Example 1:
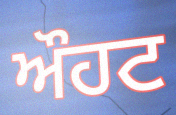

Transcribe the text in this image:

ਔਹਟ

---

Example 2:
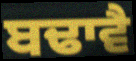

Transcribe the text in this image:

ਬਢਾਵੈ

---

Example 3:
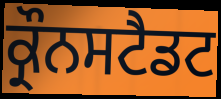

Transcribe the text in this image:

ਕ੍ਰੌਨਸਟੈਡਟ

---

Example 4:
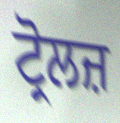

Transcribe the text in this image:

ਟ੍ਰੋਲਜ਼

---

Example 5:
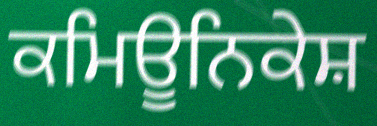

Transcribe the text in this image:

ਕਮਿਊਨਿਕੇਸ਼